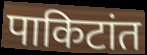
पाकिटांत